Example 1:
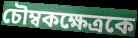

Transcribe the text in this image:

চৌম্বকক্ষেত্রকে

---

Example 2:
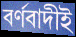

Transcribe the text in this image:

বর্ণবাদীই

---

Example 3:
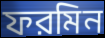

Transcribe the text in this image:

ফরমিন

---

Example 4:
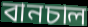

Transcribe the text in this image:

বানচাল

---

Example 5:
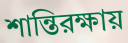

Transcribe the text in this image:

শান্তিরক্ষায়